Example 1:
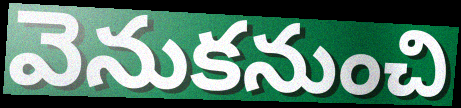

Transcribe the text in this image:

వెనుకనుంచి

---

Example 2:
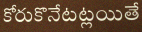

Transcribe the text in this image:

కోరుకొనేటట్లయితే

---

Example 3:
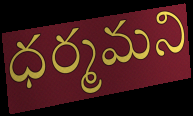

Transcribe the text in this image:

ధర్మమని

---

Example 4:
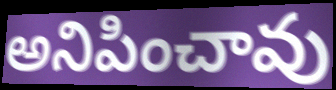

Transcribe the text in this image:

అనిపించావు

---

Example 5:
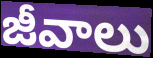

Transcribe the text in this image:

జీవాలు